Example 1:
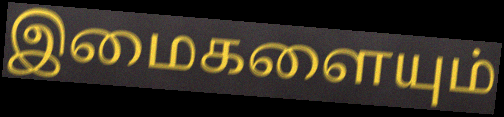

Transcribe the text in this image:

இமைகளையும்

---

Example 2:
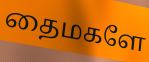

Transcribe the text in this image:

தைமகளே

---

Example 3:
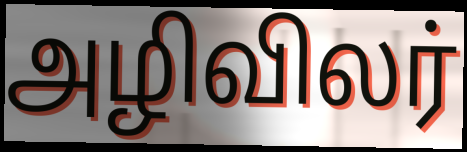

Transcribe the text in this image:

அழிவிலர்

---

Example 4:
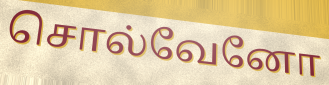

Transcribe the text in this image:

சொல்வேனோ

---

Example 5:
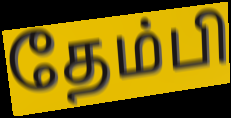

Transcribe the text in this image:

தேம்பி